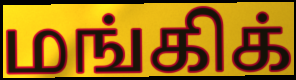
மங்கிக்